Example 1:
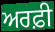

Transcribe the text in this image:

ਅਰਫ਼ੀ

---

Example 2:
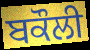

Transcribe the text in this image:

ਬਕੌਲੀ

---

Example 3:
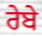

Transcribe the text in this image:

ਰੇਬੇ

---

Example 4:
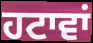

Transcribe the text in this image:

ਹਟਾਵਾਂ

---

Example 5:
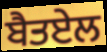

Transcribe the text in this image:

ਬੈਤਏਲ